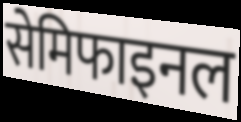
सेमिफाइनल